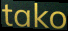
tako